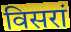
विसरां